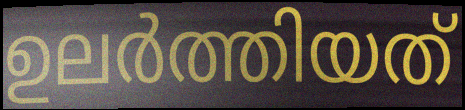
ഉലർത്തിയത്